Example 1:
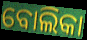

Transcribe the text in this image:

ବୋଲିକା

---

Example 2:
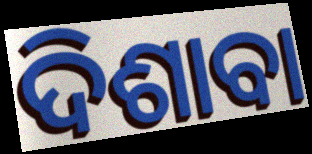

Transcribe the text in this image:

ଦିଶାବା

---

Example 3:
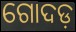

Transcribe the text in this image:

ଗୋଦଡ଼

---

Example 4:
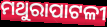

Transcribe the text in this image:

ମଥୁରାପାଟଳୀ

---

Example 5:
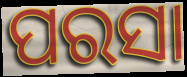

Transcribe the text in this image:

ପରସା